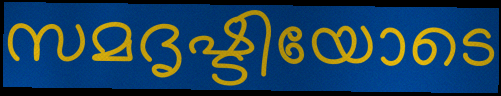
സമദൃഷ്ടിയോടെ